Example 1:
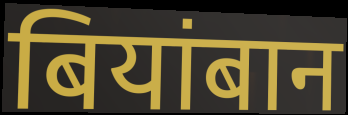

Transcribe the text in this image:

बियांबान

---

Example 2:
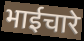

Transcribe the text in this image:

भाईचारे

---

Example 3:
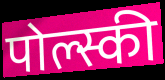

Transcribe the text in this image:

पोल्स्की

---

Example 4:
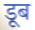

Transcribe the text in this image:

डूब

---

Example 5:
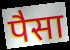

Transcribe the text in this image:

पैसा